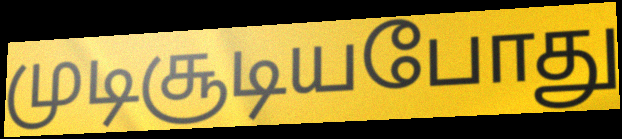
முடிசூடியபோது